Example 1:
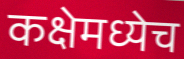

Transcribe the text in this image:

कक्षेमध्येच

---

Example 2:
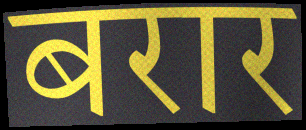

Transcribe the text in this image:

बरार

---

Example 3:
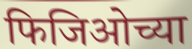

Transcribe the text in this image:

फिजिओच्या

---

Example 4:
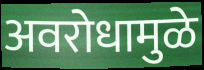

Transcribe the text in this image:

अवरोधामुळे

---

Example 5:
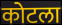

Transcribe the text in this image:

कोटला